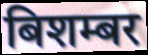
बिशम्बर